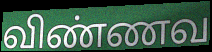
விண்ணவ